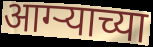
आग्ऱ्याच्या